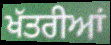
ਖੱਤਰੀਆਂ